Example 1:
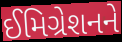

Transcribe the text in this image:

ઈમિગ્રેશનને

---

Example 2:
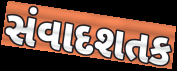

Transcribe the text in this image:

સંવાદશતક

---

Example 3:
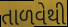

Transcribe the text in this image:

તાળવેથી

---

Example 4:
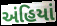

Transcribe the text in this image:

અંહિયાં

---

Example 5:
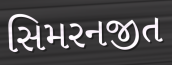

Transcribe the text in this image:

સિમરનજીત